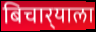
बिचार्‍याला